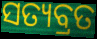
ସତ୍ୟବ୍ରତ